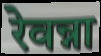
रेवन्ना